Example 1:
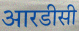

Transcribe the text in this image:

आरडीसी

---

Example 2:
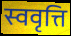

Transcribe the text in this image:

स्ववृत्ति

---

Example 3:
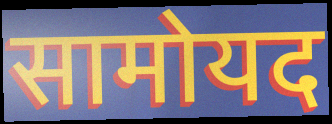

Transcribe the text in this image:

सामोयद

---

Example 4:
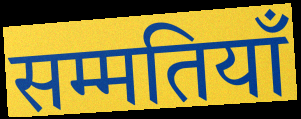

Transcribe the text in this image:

सम्मतियाँ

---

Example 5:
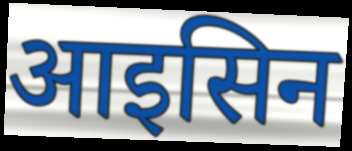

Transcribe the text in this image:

आइसिन